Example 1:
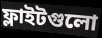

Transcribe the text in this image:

ফ্লাইটগুলো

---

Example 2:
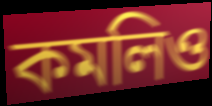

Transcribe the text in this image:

কমলিও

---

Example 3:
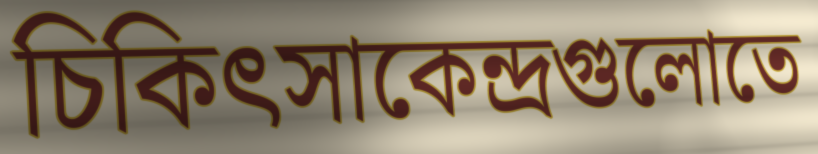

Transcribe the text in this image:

চিকিৎসাকেন্দ্রগুলোতে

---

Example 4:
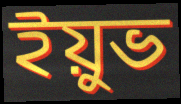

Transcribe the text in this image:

ইয়ুভ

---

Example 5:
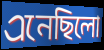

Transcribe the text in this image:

এনেছিলো